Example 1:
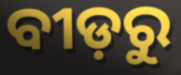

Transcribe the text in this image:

ବୀଡ଼ରୁ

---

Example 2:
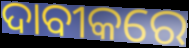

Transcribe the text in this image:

ଦାବୀକରେ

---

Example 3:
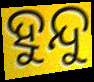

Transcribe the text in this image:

ହୁନ୍ଦୁ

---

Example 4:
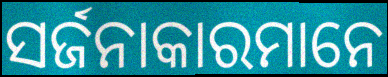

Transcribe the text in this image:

ସର୍ଜନାକାରମାନେ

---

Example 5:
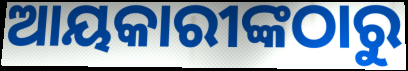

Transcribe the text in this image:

ଆୟକାରୀଙ୍କଠାରୁ